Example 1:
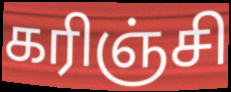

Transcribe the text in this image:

கரிஞ்சி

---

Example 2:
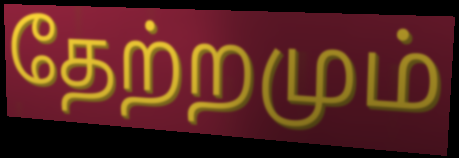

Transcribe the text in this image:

தேற்றமும்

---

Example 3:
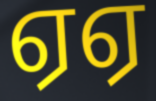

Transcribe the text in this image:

ஏஏ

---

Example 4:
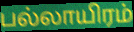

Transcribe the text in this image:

பல்லாயிரம்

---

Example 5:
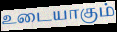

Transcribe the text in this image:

உடையாகும்